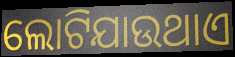
ଲୋଟିଯାଉଥାଏ